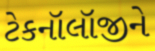
ટેકનૉલૉજીને